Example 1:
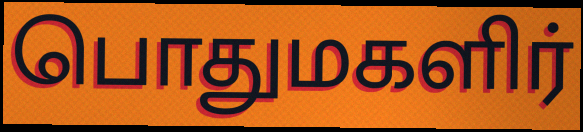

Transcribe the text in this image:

பொதுமகளிர்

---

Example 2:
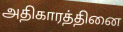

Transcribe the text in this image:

அதிகாரத்தினை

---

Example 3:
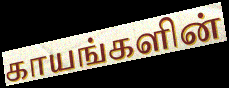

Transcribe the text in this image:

காயங்களின்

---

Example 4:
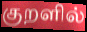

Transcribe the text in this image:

குறளில்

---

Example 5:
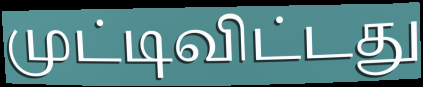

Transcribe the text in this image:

முட்டிவிட்டது